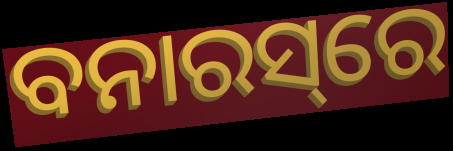
ବନାରସ୍‌ରେ